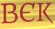
BEK